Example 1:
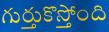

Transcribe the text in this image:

గుర్తుకొస్తోంది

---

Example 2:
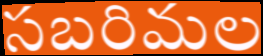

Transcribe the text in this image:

సబరిమల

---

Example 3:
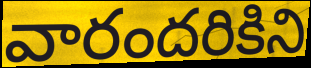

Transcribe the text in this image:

వారందరికిని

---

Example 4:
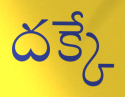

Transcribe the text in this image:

దక్కే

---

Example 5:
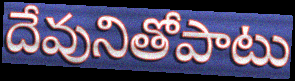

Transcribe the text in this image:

దేవునితోపాటు